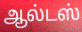
ஆல்டஸ்